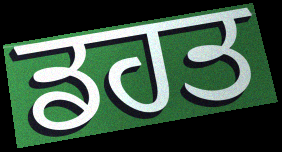
ਡਹਤ